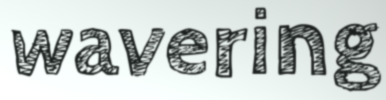
wavering